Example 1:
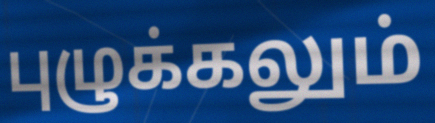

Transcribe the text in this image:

புழுக்கலும்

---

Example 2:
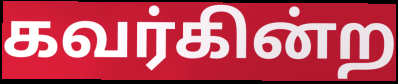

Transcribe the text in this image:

கவர்கின்ற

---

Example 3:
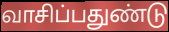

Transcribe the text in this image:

வாசிப்பதுண்டு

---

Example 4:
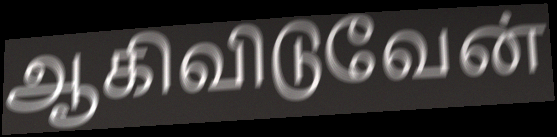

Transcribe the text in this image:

ஆகிவிடுவேன்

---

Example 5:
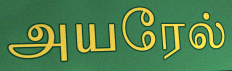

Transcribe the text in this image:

அயரேல்